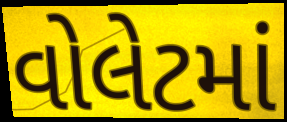
વોલેટમાં